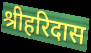
श्रीहरिदास